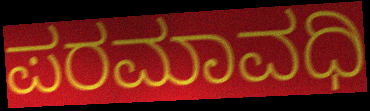
ಪರಮಾವಧಿ